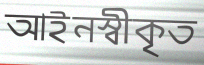
আইনস্বীকৃত